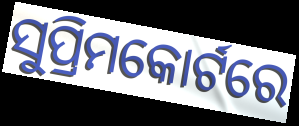
ସୁପ୍ରିମକୋର୍ଟରେ